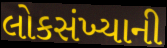
લોકસંખ્યાની